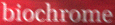
biochrome